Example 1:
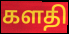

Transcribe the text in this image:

களதி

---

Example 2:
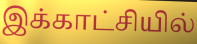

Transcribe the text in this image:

இக்காட்சியில்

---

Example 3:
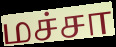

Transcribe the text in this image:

மச்சா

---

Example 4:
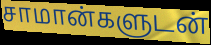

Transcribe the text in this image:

சாமான்களுடன்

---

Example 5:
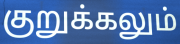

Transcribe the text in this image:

குறுக்கலும்